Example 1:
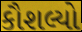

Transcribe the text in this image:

કૌશલ્યો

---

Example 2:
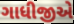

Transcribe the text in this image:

ગાધીજીએ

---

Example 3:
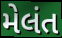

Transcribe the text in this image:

મેલંત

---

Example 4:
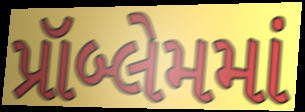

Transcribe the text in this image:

પ્રૉબ્લેમમાં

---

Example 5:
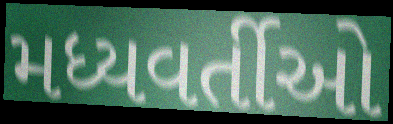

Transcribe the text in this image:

મધ્યવર્તીઓ